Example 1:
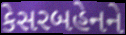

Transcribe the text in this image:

કેસરબહેનને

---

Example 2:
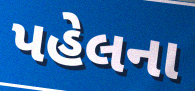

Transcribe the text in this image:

પહેલના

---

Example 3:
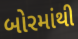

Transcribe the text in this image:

બોરમાંથી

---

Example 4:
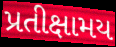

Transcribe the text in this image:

પ્રતીક્ષામય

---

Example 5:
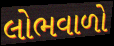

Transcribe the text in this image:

લોભવાળો